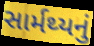
સાર્મથ્યનું